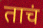
ताचं